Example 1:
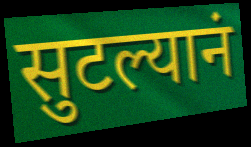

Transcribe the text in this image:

सुटल्यानं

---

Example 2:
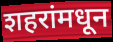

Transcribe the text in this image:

शहरांमधून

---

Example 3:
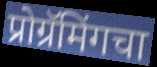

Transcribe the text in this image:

प्रोग्रॅमिंगचा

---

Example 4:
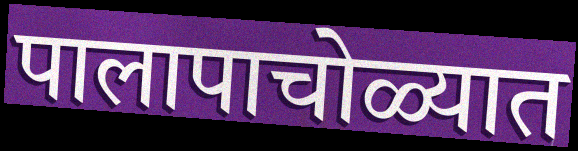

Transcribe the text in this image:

पालापाचोळ्यात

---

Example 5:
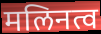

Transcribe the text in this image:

मलिनत्व